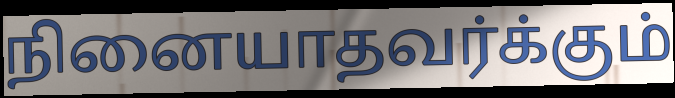
நினையாதவர்க்கும்